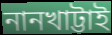
নানখাট্টাই